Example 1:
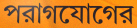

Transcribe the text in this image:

পরাগযোগের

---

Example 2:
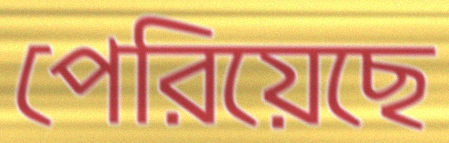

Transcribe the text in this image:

পেরিয়েছে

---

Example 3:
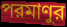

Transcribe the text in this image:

পরমাণুর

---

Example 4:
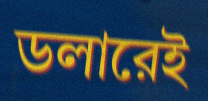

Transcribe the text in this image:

ডলারেই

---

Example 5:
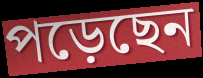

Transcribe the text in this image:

পড়েছেন